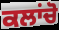
ਕਲਾਂਚੋ